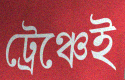
ট্রেঞ্চেই